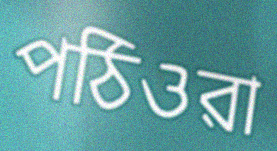
পঠিওৱা